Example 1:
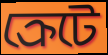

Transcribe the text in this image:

ক্রেটে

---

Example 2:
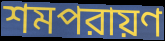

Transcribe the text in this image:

শমপরায়ণ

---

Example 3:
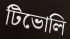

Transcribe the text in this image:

টিভোলি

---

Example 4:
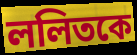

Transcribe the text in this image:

ললিতকে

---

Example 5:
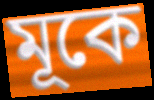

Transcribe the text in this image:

মূকে